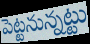
పెట్టనున్నట్టు